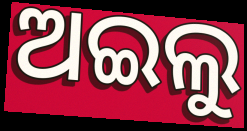
ଅଇଲୁ